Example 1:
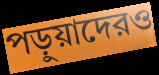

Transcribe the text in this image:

পড়ুয়াদেরও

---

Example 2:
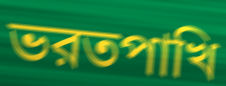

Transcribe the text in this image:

ভরতপাখি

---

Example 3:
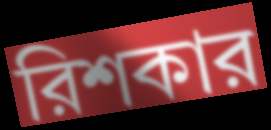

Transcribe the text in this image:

রিশকার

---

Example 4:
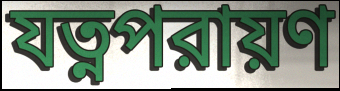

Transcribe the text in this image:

যত্নপরায়ণ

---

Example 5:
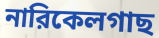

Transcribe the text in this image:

নারিকেলগাছ